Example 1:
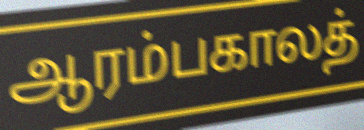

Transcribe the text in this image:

ஆரம்பகாலத்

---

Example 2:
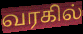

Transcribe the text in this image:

வரகில்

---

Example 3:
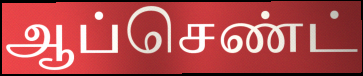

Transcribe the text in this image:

ஆப்செண்ட்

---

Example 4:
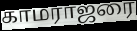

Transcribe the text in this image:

காமராஜரை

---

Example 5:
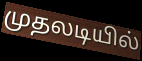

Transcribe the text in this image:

முதலடியில்